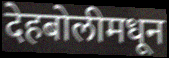
देहबोलीमधून